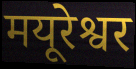
मयूरेश्वर